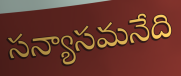
సన్యాసమనేది